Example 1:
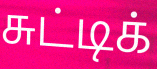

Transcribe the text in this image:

சுட்டிக்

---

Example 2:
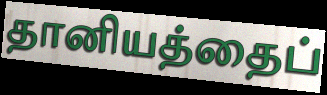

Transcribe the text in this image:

தானியத்தைப்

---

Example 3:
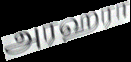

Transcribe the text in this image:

அரஹரா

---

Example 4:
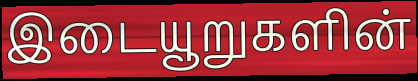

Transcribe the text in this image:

இடையூறுகளின்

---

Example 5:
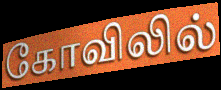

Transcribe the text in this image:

கோவிலில்